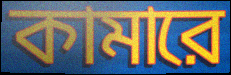
কামারে